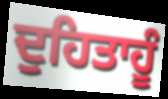
ਦੁਹਿਤਾਹੂੰ